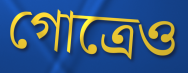
গোত্রেও